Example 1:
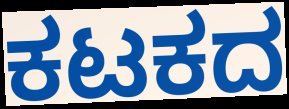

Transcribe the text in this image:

ಕಟಕದ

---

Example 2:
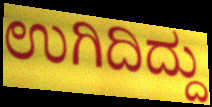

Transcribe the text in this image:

ಉಗಿದಿದ್ದು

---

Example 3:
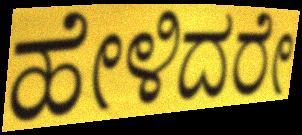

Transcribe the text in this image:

ಹೇಳಿದರೇ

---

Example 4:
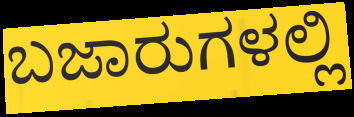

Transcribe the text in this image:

ಬಜಾರುಗಳಲ್ಲಿ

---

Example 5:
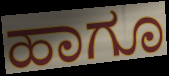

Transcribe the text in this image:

ಹಾಗೂ